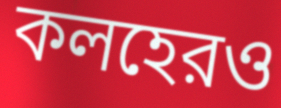
কলহেরও